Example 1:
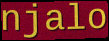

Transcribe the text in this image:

njalo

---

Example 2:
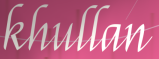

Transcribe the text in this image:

khullan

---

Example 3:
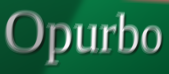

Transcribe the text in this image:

Opurbo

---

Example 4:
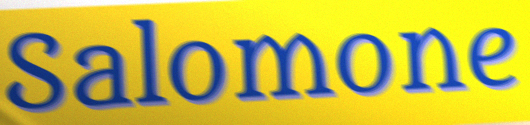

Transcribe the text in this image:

Salomone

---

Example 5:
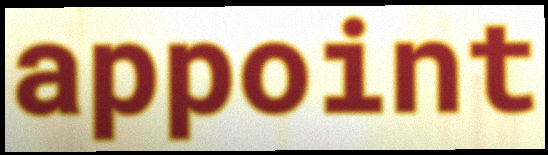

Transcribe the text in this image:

appoint